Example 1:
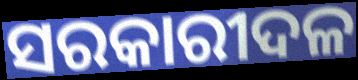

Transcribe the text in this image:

ସରକାରୀଦଳ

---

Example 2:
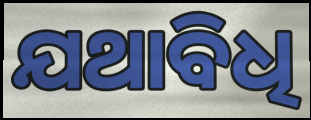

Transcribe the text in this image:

ଯଥାବିଧି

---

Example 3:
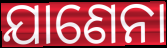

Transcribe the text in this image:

ଯାଣେନା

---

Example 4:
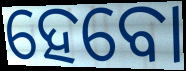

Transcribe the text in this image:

ହେବୋ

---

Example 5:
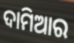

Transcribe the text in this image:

ଦାମିଆର